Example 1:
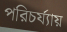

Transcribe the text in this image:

পরিচর্য্যায়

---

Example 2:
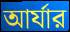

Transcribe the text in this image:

আর্যার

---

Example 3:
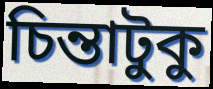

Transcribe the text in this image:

চিন্তাটুকু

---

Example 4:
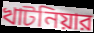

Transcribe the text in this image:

খাটনিয়ার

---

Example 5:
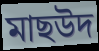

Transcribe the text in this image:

মাছউদ